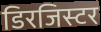
डिरजिस्टर